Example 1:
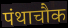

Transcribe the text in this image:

पंथाचौक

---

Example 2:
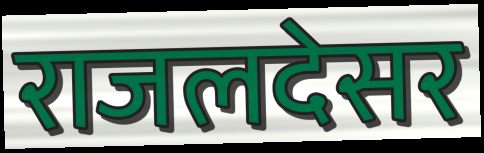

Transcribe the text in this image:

राजलदेसर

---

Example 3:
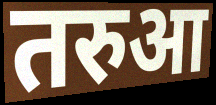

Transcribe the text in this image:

तरुआ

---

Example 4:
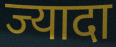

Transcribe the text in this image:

ज्‍यादा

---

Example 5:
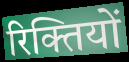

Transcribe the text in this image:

रिक्तियों